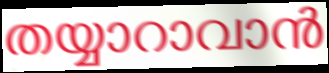
തയ്യാറാവാൻ